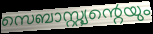
സെബാസ്റ്റ്യന്റെയും